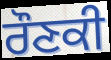
ਰੌਣਕੀ